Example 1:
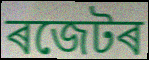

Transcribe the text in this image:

ৰজেটৰ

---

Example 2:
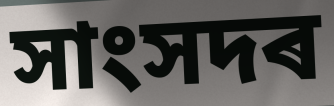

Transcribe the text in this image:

সাংসদৰ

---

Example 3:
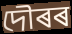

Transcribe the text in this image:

দৌৰৰ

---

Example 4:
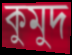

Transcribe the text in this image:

কুমুদ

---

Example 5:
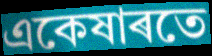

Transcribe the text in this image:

একেষাৰতে